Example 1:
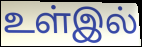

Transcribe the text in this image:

உள்இல்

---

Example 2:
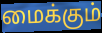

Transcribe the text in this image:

மைக்கும்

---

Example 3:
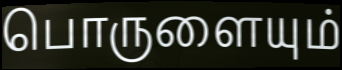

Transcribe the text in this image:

பொருளையும்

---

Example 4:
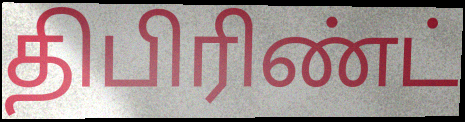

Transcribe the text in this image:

திபிரிண்ட்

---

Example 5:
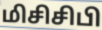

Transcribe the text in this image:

மிசிசிபி